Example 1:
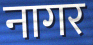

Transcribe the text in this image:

नागर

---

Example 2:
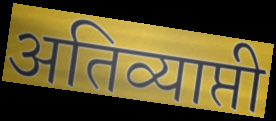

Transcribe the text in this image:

अतिव्याप्ती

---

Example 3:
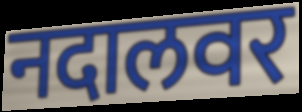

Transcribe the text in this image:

नदालवर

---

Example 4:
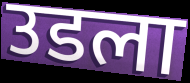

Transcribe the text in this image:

उडला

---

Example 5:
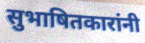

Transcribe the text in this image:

सुभाषितकारांनी